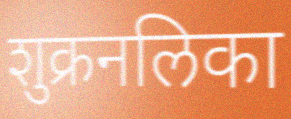
शुक्रनलिका